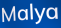
Malya